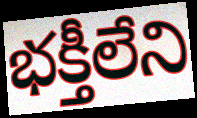
భక్తీలేని